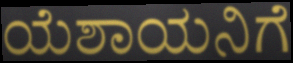
ಯೆಶಾಯನಿಗೆ